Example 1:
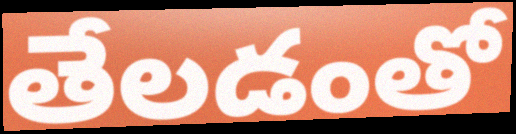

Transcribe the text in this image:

తేలడంతో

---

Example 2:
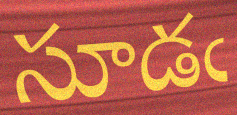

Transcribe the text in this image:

సూడఁ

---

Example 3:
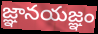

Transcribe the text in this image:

జ్ఞానయజ్ఞం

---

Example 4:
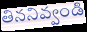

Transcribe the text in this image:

తిననివ్వండి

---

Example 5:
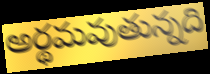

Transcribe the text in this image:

అర్థమవుతున్నది